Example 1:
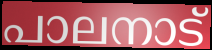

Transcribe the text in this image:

പാലനാട്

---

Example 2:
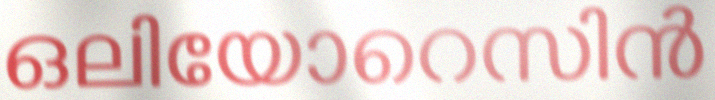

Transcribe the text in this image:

ഒലിയോറെസിൻ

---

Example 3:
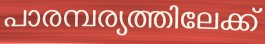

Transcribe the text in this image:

പാരമ്പര്യത്തിലേക്ക്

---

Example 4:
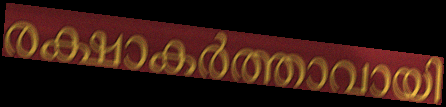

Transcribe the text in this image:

രക്ഷാകർത്താവായി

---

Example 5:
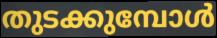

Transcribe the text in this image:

തുടക്കുമ്പോൾ